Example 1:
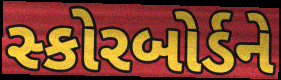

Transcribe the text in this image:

સ્કોરબોર્ડને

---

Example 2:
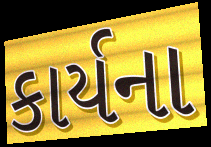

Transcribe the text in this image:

કાર્યના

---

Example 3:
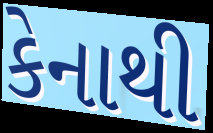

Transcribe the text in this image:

કેનાથી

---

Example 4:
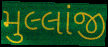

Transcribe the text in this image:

મુલ્લાંજી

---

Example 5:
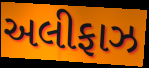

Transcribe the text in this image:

અલીફાઝ